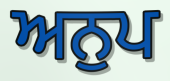
ਅਨੁਪ